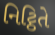
નિટ્ઠિતે